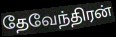
தேவேந்திரன்